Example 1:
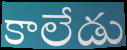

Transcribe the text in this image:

కాలేడు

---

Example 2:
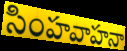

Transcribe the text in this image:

సింహవాహనా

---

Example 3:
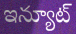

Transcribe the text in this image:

ఇన్యూట్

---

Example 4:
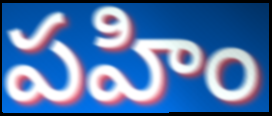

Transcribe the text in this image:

పహిం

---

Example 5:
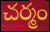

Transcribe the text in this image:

చర్మం